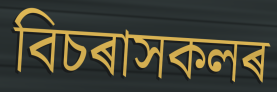
বিচৰাসকলৰ